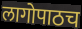
लागोपाठच